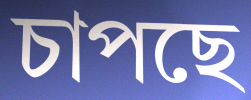
চাপছে